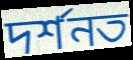
দৰ্শনত